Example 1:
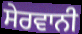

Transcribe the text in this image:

ਸੇਰਵਾਨੀ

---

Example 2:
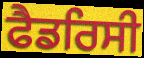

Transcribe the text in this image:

ਫੈਡਰਿਸੀ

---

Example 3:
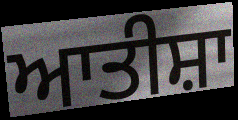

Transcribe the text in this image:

ਆਤੀਸ਼ਾ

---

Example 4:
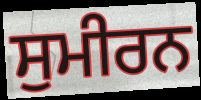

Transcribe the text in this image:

ਸੁਮੀਰਨ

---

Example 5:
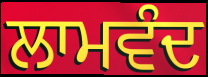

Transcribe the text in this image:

ਲਾਮਵੰਦ